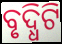
ବୃଦ୍ଧିଟି